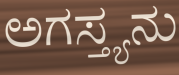
ಅಗಸ್ತ್ಯನು